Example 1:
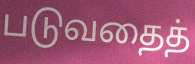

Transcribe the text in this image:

படுவதைத்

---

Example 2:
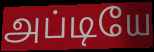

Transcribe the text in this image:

அப்டியே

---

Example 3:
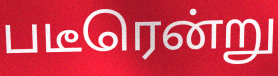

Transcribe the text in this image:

படீரென்று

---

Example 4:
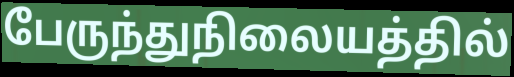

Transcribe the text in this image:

பேருந்துநிலையத்தில்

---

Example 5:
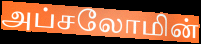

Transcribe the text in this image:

அப்சலோமின்